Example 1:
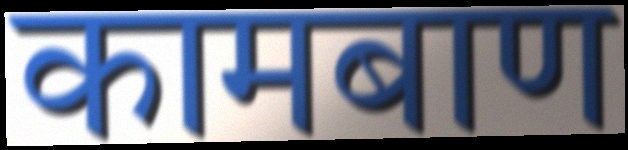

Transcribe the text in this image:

कामबाण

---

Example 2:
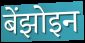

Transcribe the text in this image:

बेंझोइन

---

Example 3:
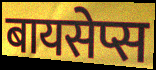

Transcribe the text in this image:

बायसेप्स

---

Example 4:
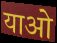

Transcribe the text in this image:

याओ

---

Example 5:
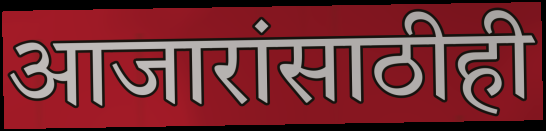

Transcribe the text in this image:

आजारांसाठीही